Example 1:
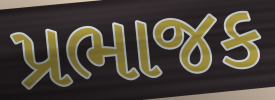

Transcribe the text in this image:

પ્રભાજક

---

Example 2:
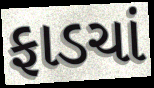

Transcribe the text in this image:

ફાડચાં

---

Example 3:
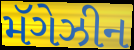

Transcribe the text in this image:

મૅગેઝીન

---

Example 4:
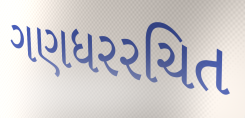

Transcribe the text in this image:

ગણધરરચિત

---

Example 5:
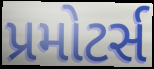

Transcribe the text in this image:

પ્રમોટર્સ